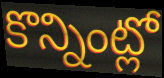
కొన్నింట్లో